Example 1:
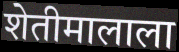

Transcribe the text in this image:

शेतीमालाला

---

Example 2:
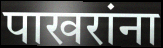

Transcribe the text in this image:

पाखरांना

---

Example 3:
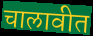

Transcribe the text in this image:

चालावीत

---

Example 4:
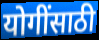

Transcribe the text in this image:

योगींसाठी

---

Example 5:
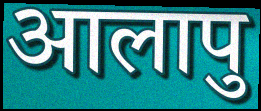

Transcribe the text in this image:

आलापु